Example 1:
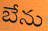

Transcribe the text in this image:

బేను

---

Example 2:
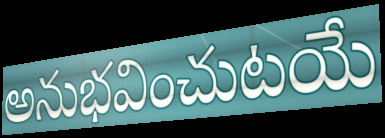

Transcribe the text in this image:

అనుభవించుటయే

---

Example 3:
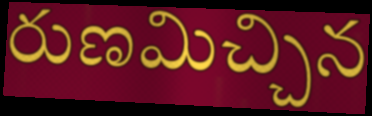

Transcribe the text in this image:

రుణమిచ్చిన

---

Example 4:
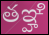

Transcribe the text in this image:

తఞ్హి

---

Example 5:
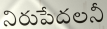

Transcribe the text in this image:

నిరుపేదలనీ